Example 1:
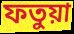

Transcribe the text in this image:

ফতুয়া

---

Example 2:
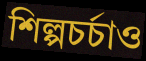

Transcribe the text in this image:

শিল্পচর্চাও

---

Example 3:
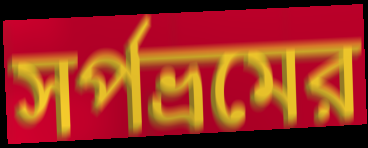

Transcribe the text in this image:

সর্পভ্রমের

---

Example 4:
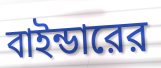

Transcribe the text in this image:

বাইন্ডারের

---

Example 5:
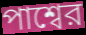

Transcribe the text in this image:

পাশ্বের